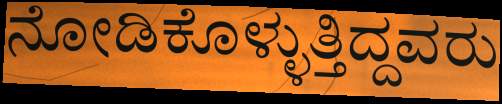
ನೋಡಿಕೊಳ್ಳುತ್ತಿದ್ದವರು